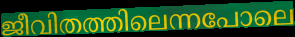
ജീവിതത്തിലെന്നപോലെ